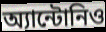
অ্যান্টোনিও